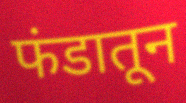
फंडातून